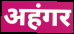
अहंगर